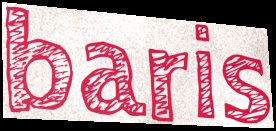
baris